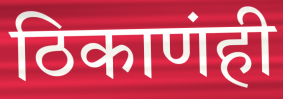
ठिकाणंही